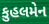
કુહલમેન